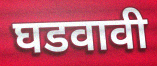
घडवावी